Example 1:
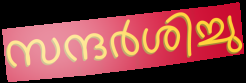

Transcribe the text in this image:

സന്ദർശിച്ചു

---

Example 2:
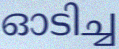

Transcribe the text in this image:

ഓടിച്ച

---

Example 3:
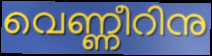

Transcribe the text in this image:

വെണ്ണീറിനു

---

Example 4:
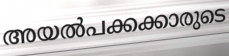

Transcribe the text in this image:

അയൽപക്കക്കാരുടെ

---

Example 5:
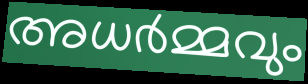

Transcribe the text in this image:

അധർമ്മവും